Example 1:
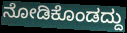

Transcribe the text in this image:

ನೋಡಿಕೊಂಡದ್ದು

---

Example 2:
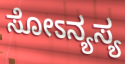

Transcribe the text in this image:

ಸೋಽನ್ಯಸ್ಯ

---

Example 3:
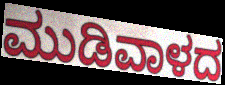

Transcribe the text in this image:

ಮುಡಿವಾಳದ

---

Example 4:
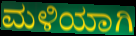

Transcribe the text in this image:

ಮಳಿಯಾಗಿ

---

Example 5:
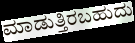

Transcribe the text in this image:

ಮಾಡುತ್ತಿರಬಹುದು